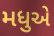
મધુએ